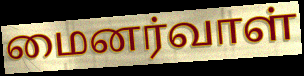
மைனர்வாள்